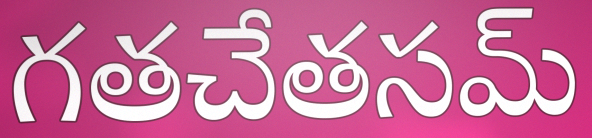
గతచేతసమ్